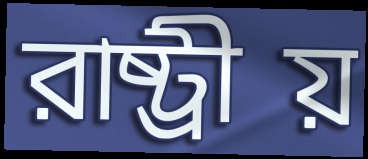
রাষ্ট্রীয়